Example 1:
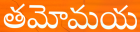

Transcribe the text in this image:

తమోమయ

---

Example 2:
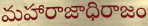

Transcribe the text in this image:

మహారాజాధిరాజం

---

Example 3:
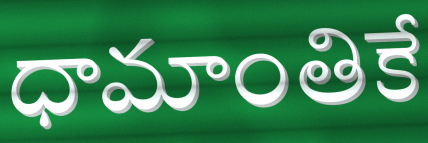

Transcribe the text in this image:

ధామాంతికే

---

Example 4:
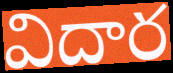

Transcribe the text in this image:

విదార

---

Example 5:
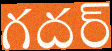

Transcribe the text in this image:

గదర్